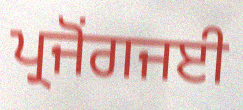
ਪ੍ਰਜੋਂਗਜਈ